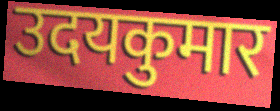
उदयकुमार